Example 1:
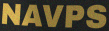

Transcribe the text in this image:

NAVPS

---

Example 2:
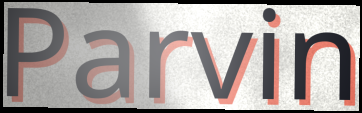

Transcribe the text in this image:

Parvin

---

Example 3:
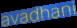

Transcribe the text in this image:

avadhani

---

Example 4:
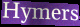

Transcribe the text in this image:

Hymers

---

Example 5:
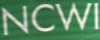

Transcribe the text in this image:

NCWI